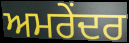
ਅਮਰੇਂਦਰ